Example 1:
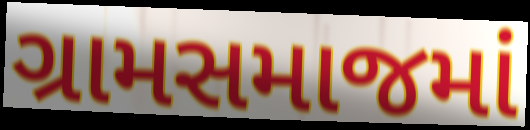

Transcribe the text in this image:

ગ્રામસમાજમાં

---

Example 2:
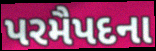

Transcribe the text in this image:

પરમૈપદના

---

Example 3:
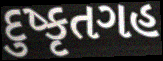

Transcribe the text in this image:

દુષ્કૃતગહ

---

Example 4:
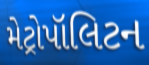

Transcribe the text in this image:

મેટ્રોપૉલિટન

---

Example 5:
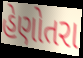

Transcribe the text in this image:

હેણોતરા